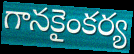
గానకైంకర్య